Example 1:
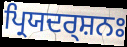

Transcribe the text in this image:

ਪ੍ਰਿਯਦਰ੍ਸ਼ਨਃ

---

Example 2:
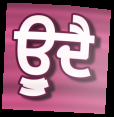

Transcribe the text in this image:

ਊੁਦੈ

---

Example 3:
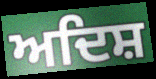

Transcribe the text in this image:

ਅਦਿਸ਼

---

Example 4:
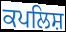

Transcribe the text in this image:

ਕਪਲਿਸ਼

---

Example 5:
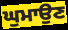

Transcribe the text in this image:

ਘੁਮਾਉਣ